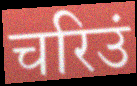
चरिउं